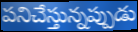
పనిచేస్తున్నప్పుడు